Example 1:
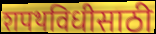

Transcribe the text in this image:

शपथविधीसाठी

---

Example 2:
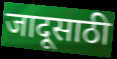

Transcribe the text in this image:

जादूसाठी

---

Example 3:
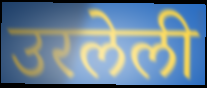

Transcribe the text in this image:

उरलेली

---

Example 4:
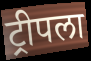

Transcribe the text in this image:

ट्रीपला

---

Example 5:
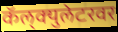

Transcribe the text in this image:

कॅल्क्युलेटरवर